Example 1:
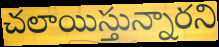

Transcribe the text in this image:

చలాయిస్తున్నారని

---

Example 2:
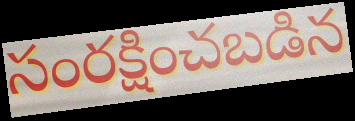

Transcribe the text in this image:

సంరక్షించబడిన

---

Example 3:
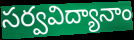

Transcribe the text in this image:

సర్వవిద్యానాం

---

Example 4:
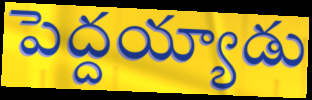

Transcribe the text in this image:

పెద్దయ్యాడు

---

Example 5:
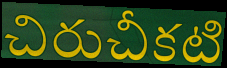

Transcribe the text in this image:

చిరుచీకటి